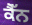
ਕੈੱਨ